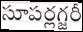
సూపర్లగ్జరీ